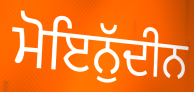
ਮੋਇਨੁੱਦੀਨ